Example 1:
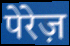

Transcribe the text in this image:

पेरेज़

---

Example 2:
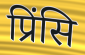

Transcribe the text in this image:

प्रिंसि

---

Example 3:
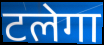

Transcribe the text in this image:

टलेगा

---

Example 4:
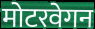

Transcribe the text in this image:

मोटरवेगन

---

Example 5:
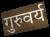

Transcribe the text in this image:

गुरुवर्य